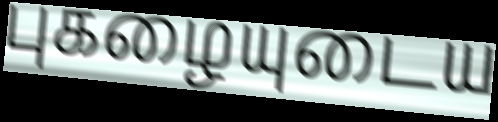
புகழையுடைய